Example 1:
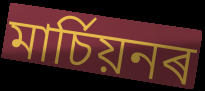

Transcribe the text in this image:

মাৰ্চিয়নৰ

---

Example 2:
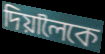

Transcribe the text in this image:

দিয়ালৈকে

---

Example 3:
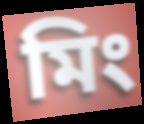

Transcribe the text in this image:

মিং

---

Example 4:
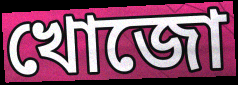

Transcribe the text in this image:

খোজো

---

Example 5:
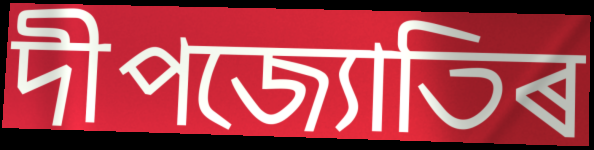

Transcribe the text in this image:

দীপজ্যোতিৰ